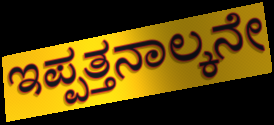
ಇಪ್ಪತ್ತನಾಲ್ಕನೇ